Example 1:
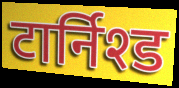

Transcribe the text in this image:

टार्निश्ड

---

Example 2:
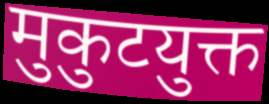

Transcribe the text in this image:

मुकुटयुक्त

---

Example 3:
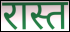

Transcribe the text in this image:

रास्त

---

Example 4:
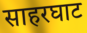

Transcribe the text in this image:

साहरघाट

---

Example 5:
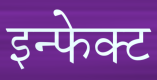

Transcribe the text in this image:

इन्फेक्ट